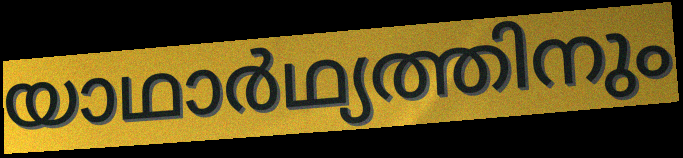
യാഥാർഥ്യത്തിനും